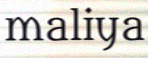
maliya